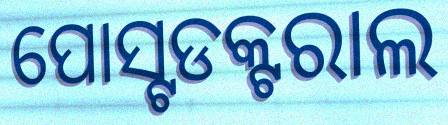
ପୋସ୍ଟଡକ୍ଟରାଲ